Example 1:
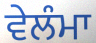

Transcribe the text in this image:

ਵੇਲੰਮਾ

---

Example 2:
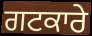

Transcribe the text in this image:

ਗਟਕਾਰੇ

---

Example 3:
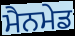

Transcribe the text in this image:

ਮੈਨਮੇਡ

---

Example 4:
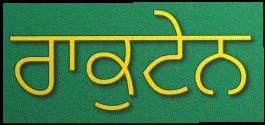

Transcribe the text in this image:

ਰਾਕੁਟੇਨ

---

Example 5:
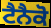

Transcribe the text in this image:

ਟੈਨੈਕੋ